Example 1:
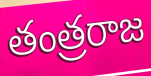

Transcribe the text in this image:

తంత్రరాజ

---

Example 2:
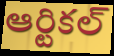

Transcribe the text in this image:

ఆర్టికల్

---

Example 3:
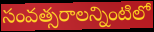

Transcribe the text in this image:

సంవత్సరాలన్నింటిలో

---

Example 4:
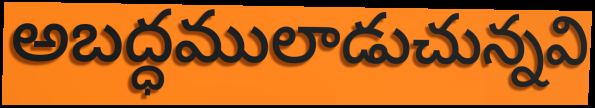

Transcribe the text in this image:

అబద్ధములాడుచున్నవి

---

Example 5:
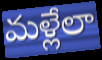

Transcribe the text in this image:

మళ్లేలా